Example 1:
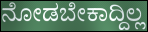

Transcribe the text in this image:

ನೋಡಬೇಕಾದ್ದಿಲ್ಲ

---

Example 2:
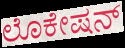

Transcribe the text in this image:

ಲೊಕೇಷನ್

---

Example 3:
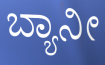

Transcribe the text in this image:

ಬ್ಯಾನೀ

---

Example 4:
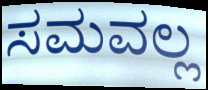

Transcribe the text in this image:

ಸಮವಲ್ಲ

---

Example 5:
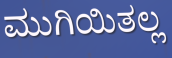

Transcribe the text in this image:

ಮುಗಿಯಿತಲ್ಲ